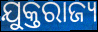
ଯୁକ୍ତରାଜ୍ୟ